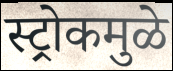
स्ट्रोकमुळे